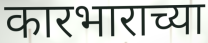
कारभाराच्या